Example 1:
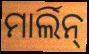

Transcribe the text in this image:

ମାର୍ଲିନ୍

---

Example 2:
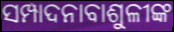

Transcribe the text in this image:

ସମ୍ପାଦନାବାଶୁଳୀଙ୍କ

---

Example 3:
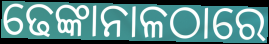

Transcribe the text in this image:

ଢେଙ୍କାନାଳଠାରେ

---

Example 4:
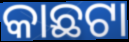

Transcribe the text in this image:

କାଛଟା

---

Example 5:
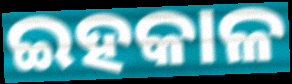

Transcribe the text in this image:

ଇହକାଳ